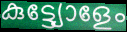
കുട്ട്യോളേം